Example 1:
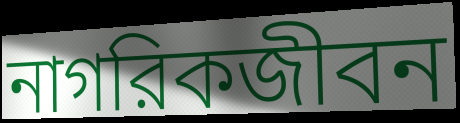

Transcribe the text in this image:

নাগরিকজীবন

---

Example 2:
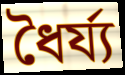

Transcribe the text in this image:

ধৈর্য্য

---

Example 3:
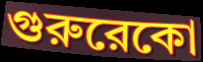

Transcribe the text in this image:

গুরুরেকো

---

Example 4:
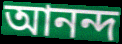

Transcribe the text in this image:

আনন্দ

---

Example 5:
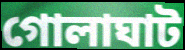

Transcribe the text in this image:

গোলাঘাট